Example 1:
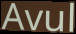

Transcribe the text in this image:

Avul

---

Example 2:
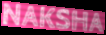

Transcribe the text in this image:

NAKSHA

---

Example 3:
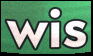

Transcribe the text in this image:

wis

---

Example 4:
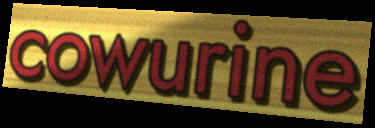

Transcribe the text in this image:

cowurine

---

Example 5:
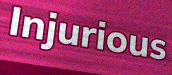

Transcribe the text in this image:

Injurious